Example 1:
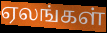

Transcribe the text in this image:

ஏலங்கள்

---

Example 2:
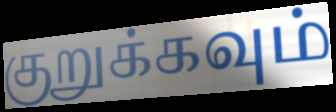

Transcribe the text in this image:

குறுக்கவும்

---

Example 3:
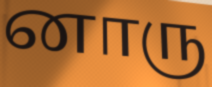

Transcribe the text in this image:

னாரு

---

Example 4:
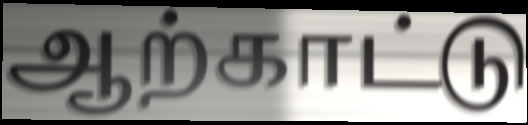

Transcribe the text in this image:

ஆற்காட்டு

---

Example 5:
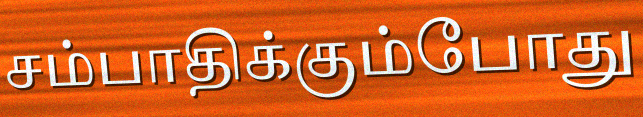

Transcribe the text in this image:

சம்பாதிக்கும்போது